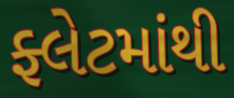
ફ્લેટમાંથી